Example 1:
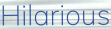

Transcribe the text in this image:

Hilarious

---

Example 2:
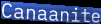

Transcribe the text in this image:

Canaanite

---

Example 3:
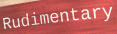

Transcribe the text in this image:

Rudimentary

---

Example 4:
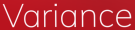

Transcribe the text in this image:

Variance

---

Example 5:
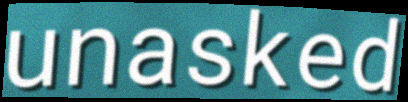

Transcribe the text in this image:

unasked